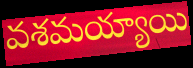
వశమయ్యాయి